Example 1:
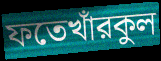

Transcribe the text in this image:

ফতেখাঁরকুল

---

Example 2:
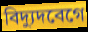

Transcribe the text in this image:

বিদ্যুদবেগে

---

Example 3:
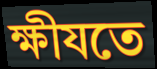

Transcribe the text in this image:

ক্ষীযতে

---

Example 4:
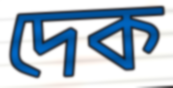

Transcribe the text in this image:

দেক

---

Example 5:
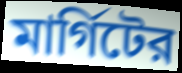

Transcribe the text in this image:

মার্গিটের